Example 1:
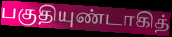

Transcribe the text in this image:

பகுதியுண்டாகித்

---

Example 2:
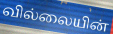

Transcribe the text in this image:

வில்லையின்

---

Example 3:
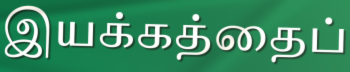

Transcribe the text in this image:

இயக்கத்தைப்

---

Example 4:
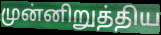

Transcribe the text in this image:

முன்னிறுத்திய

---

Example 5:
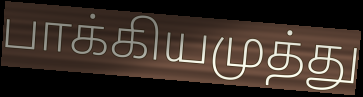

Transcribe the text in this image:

பாக்கியமுத்து